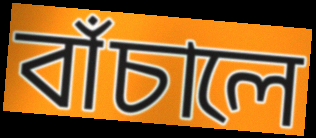
বাঁচালে